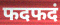
फदफदं